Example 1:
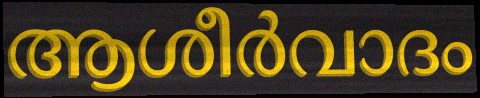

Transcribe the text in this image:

ആശീർവാദം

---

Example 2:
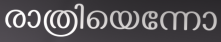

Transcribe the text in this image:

രാത്രിയെന്നോ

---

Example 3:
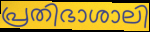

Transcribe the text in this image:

പ്രതിഭാശാലി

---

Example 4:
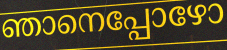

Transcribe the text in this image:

ഞാനെപ്പോഴോ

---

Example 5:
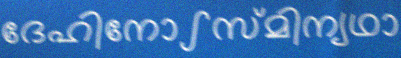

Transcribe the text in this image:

ദേഹിനോഽസ്മിന്യഥാ